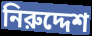
নিরুদ্দেশ